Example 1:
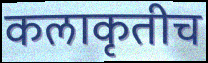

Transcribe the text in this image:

कलाकृतीच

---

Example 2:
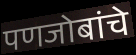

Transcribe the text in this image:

पणजोबांचे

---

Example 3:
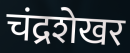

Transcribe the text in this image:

चंद्रशेखर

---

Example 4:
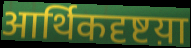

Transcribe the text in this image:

आर्थिकदृष्टय़ा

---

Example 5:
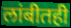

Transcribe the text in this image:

लांबीतही